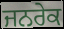
ਜਨਰੇਕ